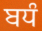
ਬਧੰ